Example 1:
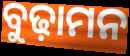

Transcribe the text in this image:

ବୁଢ଼ାମନ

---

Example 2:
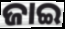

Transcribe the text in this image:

ଜାଇ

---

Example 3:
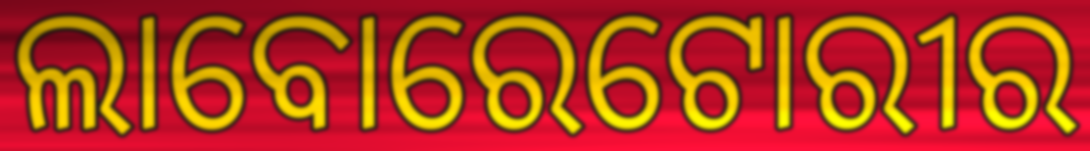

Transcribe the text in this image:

ଲାବୋରେଟୋରୀର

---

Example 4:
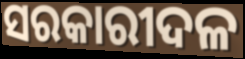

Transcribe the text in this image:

ସରକାରୀଦଳ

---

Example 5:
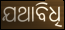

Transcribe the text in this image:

ଯଥାବିଧି